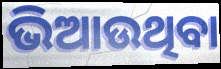
ଭିଆଉଥିବା